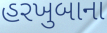
હરખુબાના